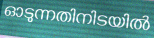
ഓടുന്നതിനിടയിൽ